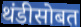
थंडीसोबत